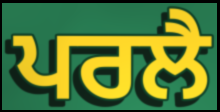
ਪਰਲੈ